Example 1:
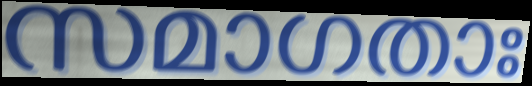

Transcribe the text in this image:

സമാഗതാഃ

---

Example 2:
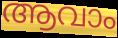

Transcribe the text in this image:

ആവാം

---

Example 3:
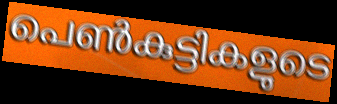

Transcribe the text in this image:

പെൺകുട്ടികളുടെ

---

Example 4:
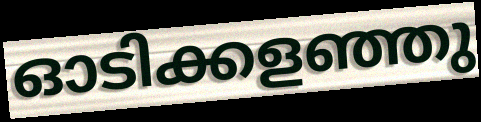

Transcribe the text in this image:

ഓടിക്കളഞ്ഞു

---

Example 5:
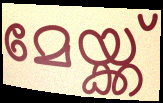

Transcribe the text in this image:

മേയ്ക്ക്